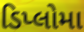
ડિપ્લોમા